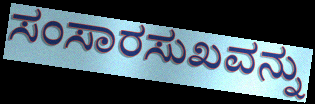
ಸಂಸಾರಸುಖವನ್ನು